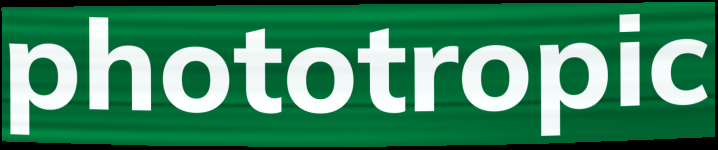
phototropic